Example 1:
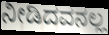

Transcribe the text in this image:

ನೀಡಿದವನಲ್ಲ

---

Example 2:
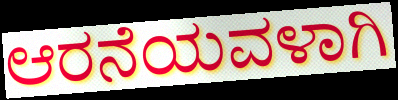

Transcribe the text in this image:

ಆರನೆಯವಳಾಗಿ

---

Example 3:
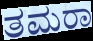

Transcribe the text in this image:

ತಮರಾ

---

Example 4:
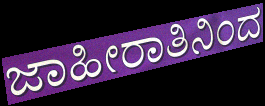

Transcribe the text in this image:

ಜಾಹೀರಾತಿನಿಂದ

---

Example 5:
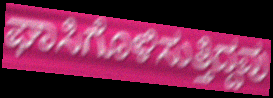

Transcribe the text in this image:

ಘಾಸಿಗೊಳಿಸುತ್ತಿದ್ದವು